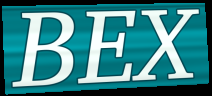
BEX